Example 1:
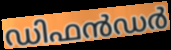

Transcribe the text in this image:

ഡിഫൻഡർ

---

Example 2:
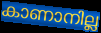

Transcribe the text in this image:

കാണാനില്ല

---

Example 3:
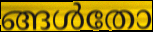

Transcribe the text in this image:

ങ്ങൾതോ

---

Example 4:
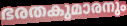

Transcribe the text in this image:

ഭരതകുമാരനും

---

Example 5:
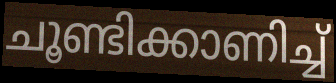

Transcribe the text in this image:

ചൂണ്ടിക്കാണിച്ച്